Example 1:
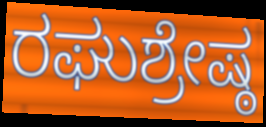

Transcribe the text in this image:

ರಘುಶ್ರೇಷ್ಠ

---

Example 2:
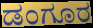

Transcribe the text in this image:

ಡಂಗೂರ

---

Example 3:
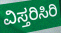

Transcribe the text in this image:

ವಿಸ್ತರಿಸಿರಿ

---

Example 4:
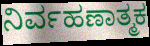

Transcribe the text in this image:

ನಿರ್ವಹಣಾತ್ಮಕ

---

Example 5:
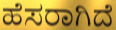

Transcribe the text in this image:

ಹೆಸರಾಗಿದೆ